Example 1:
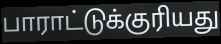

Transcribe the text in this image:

பாராட்டுக்குரியது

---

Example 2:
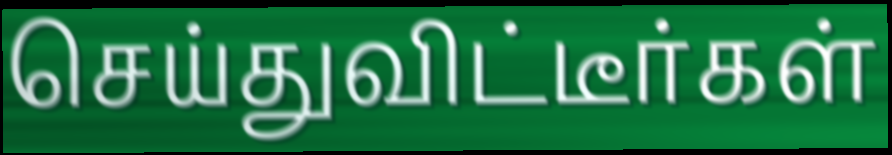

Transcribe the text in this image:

செய்துவிட்டீர்கள்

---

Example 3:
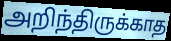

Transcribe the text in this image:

அறிந்திருக்காத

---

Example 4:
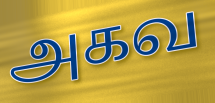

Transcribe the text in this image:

அகவ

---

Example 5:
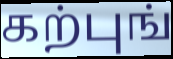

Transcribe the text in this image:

கற்புங்